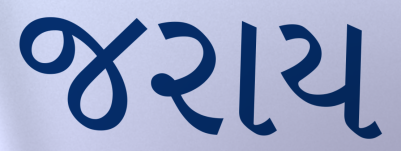
જરાય